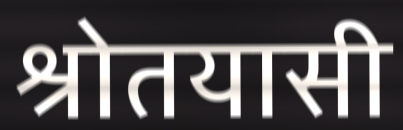
श्रोतयासी